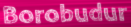
Borobudur